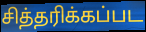
சித்தரிக்கப்பட